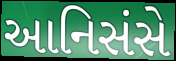
આનિસંસે